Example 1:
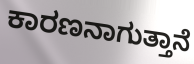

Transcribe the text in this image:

ಕಾರಣನಾಗುತ್ತಾನೆ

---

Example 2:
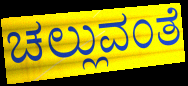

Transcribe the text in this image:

ಚಲ್ಲುವಂತೆ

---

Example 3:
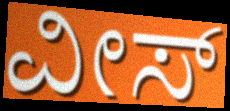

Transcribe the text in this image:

ವೀಸ್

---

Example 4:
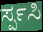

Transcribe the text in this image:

ರ್ಸ್ಪಸಿ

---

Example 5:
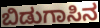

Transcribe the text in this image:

ಬಿಡುಗಾಸಿನ